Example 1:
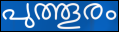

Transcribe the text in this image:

പുത്തൂരം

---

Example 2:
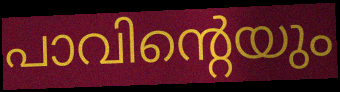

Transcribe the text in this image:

പാവിന്റെയും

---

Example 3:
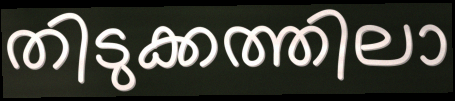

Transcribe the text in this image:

തിടുക്കത്തിലാ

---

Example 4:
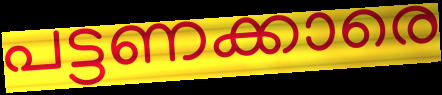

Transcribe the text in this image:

പട്ടണക്കാരെ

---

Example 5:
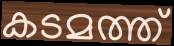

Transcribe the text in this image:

കടമത്ത്